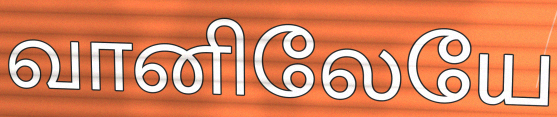
வானிலேயே